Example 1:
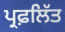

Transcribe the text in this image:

ਪ੍ਰਫ਼ਲਿੱਤ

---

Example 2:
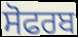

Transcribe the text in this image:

ਸੋਫਰਬ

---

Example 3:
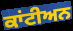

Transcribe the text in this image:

ਕਾਂਟੀਅਨ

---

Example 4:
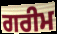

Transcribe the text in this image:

ਗਰੀਮ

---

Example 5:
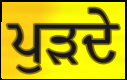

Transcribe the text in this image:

ਪੁੜਦੇ